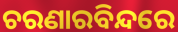
ଚରଣାରବିନ୍ଦରେ